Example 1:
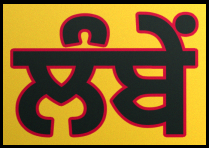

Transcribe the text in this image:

ਲੰਬੇਂ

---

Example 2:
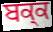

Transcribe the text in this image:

ਬਕ੍ਕ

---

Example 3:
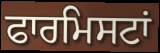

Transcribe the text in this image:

ਫਾਰਮਿਸਟਾਂ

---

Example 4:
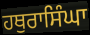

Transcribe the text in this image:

ਹਥੁਰਾਸਿੰਘਾ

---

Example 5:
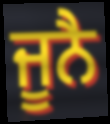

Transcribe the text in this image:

ਜੂਨੈ